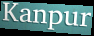
Kanpur